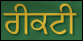
ਰੀਕਟੀ